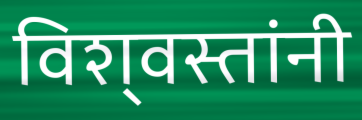
विश्वस्तांनी